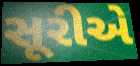
સૂરીએ